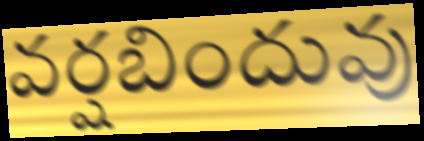
వర్షబిందువు